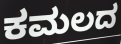
ಕಮಲದ